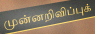
முன்னறிவிப்புக்